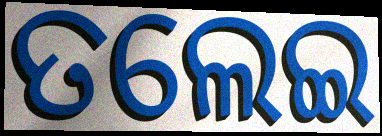
ତଲେଇ